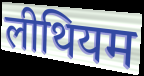
लीथियम